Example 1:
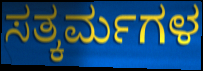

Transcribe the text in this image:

ಸತ್ಕರ್ಮಗಳ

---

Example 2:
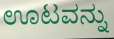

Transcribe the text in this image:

ಊಟವನ್ನು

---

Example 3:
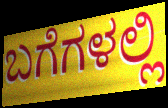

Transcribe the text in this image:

ಬಗೆಗಳಲ್ಲಿ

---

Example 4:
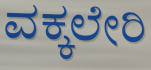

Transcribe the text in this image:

ವಕ್ಕಲೇರಿ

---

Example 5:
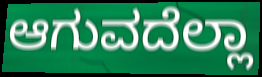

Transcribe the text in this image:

ಆಗುವದೆಲ್ಲಾ